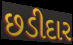
છડીદાર